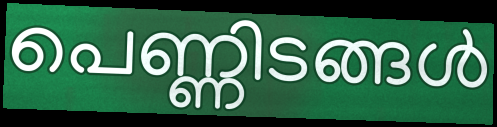
പെണ്ണിടങ്ങൾ